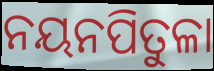
ନୟନପିତୁଳା